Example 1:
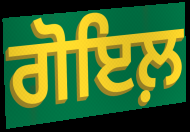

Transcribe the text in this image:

ਗੋਇਲ਼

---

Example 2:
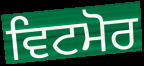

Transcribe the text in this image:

ਵਿਟਮੋਰ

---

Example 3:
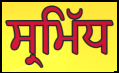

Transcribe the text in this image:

ਸ੍ਰਮਿੱਧ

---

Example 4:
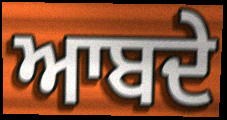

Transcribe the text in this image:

ਆਬਦੇ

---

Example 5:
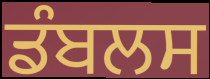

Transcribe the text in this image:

ਡੰਬਲਸ